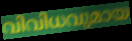
വിവിധവുമായ